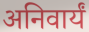
अनिवार्यं